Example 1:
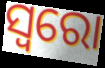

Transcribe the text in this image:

ସ୍ୱରୋ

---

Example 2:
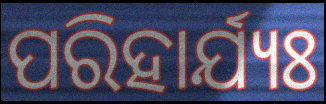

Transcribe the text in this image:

ପରିହାର୍ଯ୍ୟଃ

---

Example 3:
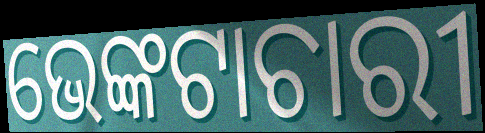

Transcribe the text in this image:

ଭେଙ୍କଟାଚାରୀ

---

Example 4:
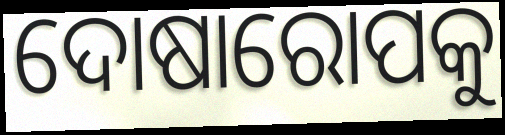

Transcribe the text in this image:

ଦୋଷାରୋପକୁ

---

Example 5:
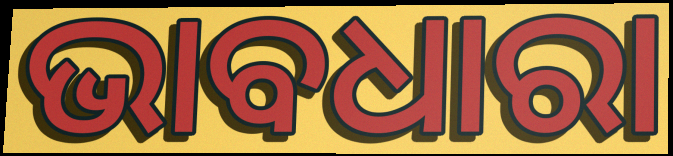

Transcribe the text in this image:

ଭାବଧାରା